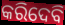
କରିଦେବି